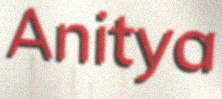
Anitya